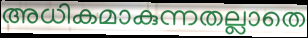
അധികമാകുന്നതല്ലാതെ